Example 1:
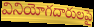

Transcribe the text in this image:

వినియోగదారులపై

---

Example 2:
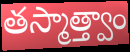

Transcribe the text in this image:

తస్మాత్త్వాం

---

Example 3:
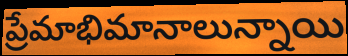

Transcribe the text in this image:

ప్రేమాభిమానాలున్నాయి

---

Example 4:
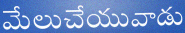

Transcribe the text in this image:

మేలుచేయువాడు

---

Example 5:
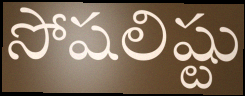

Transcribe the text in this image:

సోషలిష్టు